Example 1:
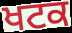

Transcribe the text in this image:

ਖਟਕ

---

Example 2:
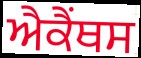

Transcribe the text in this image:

ਐਕੈਂਥਸ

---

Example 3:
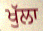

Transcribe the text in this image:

ਖੁੱਲਾ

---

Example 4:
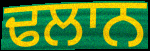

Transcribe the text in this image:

ਢਲਾਨ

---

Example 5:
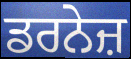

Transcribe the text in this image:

ਡਰਨੇਜ਼